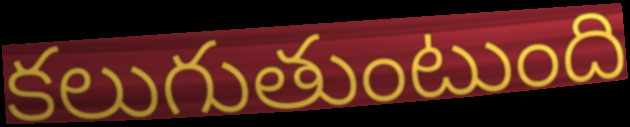
కలుగుతుంటుంది